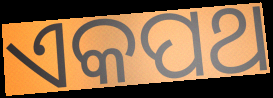
ଏକପଥ